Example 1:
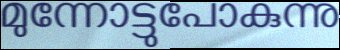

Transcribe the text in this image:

മുന്നോട്ടുപോകുന്നു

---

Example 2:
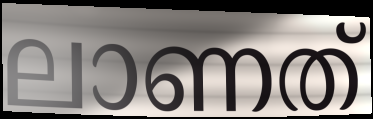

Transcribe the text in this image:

ലാണത്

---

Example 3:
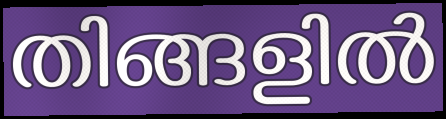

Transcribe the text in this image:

തിങ്ങളിൽ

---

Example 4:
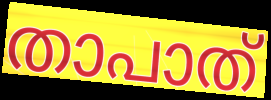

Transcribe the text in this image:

താപാത്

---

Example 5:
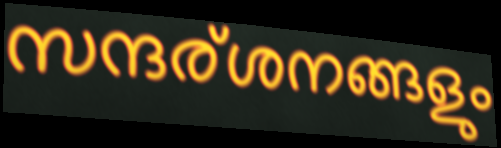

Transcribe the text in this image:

സന്ദര്ശനങ്ങളും